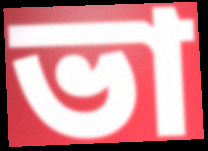
ভা